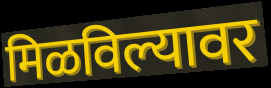
मिळविल्यावर